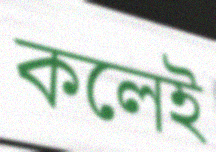
কলেই